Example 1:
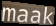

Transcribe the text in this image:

maak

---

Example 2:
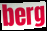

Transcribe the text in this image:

berg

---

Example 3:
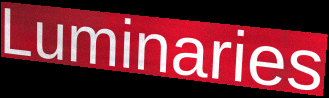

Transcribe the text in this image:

Luminaries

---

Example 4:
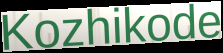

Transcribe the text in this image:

Kozhikode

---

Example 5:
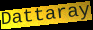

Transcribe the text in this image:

Dattaray